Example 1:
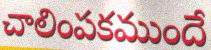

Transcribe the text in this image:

చాలింపకముందే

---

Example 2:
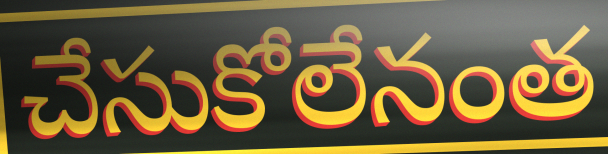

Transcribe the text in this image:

చేసుకోలేనంత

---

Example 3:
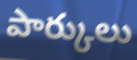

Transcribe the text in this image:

పార్కులు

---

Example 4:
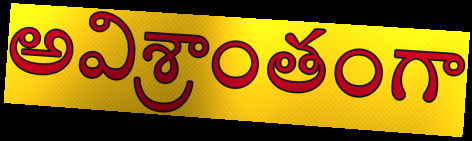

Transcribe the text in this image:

అవిశ్రాంతంగా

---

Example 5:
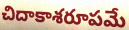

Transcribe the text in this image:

చిదాకాశరూపమే